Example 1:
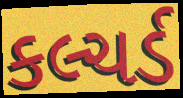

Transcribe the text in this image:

કલ્ચર્ડ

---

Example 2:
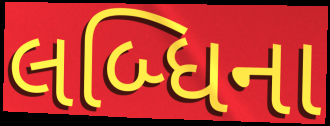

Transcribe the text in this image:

લબ્ધિના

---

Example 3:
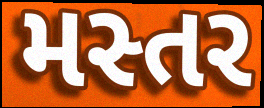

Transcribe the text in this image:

મસ્તર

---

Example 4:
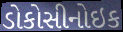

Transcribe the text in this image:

ડોકોસીનોઇક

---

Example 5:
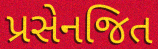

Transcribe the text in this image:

પ્રસેનજિત